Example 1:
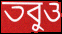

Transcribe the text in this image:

তবুও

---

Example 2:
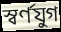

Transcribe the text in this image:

স্বর্ণযুগ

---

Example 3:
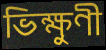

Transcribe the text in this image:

ভিক্ষুণী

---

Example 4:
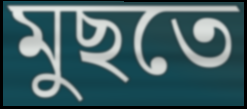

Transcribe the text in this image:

মুছতে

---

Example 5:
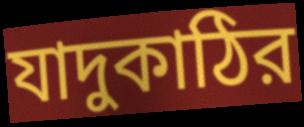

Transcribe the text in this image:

যাদুকাঠির